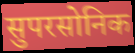
सुपरसोनिक